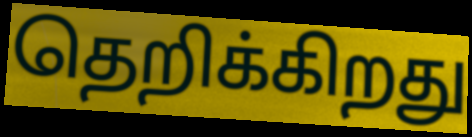
தெறிக்கிறது